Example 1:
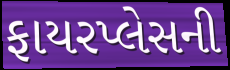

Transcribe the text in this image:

ફાયરપ્લેસની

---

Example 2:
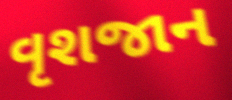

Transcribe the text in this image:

વૃશજાન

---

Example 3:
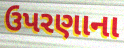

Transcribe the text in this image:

ઉપરણાના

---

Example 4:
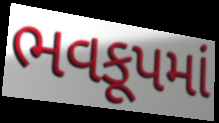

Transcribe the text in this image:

ભવકૂપમાં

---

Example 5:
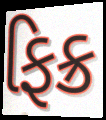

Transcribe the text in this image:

ફિક્ર